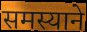
समस्याने